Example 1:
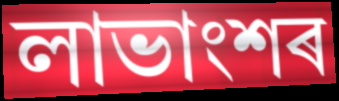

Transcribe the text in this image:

লাভাংশৰ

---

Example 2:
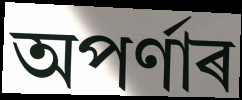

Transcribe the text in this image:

অপৰ্ণাৰ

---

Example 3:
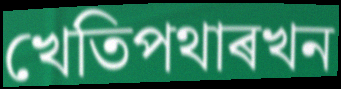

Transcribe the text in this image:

খেতিপথাৰখন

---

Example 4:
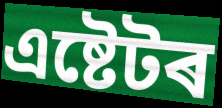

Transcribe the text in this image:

এষ্টেটৰ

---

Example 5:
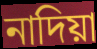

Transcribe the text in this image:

নাদিয়া